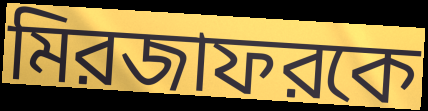
মিরজাফরকে